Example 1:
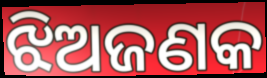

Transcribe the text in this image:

ଝିଅଜଣକ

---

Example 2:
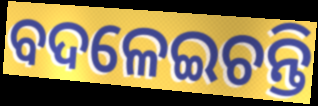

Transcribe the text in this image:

ବଦଳେଇଚନ୍ତି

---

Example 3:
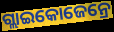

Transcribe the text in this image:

ଗ୍ଲାଇକୋଜେନ୍ରେ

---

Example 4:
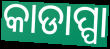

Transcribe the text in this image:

କାଡାପ୍ପା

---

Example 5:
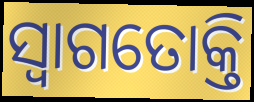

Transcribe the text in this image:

ସ୍ଵାଗତୋକ୍ତି